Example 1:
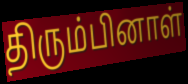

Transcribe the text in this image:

திரும்பினாள்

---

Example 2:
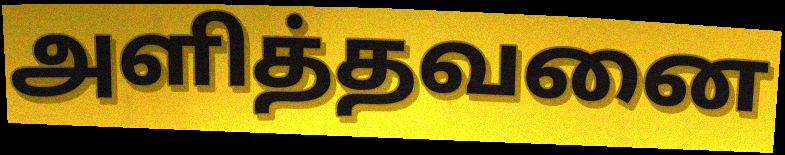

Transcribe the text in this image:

அளித்தவனை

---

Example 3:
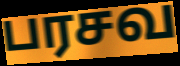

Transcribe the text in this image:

பரசவ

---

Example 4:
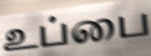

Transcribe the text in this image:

உப்பை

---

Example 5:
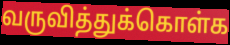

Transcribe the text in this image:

வருவித்துக்கொள்க